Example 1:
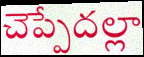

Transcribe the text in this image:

చెప్పేదల్లా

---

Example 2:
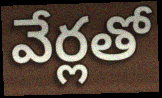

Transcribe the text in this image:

వేర్లతో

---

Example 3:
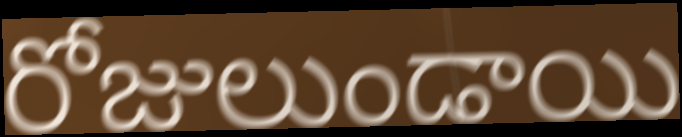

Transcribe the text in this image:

రోజులుండాయి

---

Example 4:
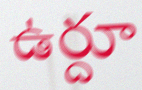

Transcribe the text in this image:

ఉర్దూ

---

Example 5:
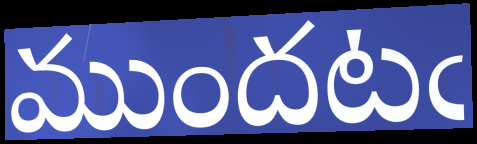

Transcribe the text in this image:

ముందటఁ